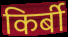
किर्बी